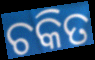
ଚକିତ